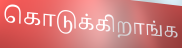
கொடுக்கிறாங்க